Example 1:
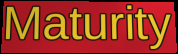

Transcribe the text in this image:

Maturity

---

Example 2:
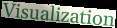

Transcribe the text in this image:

Visualization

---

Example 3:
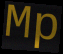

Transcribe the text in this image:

Mp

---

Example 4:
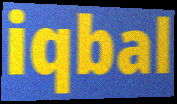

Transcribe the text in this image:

iqbal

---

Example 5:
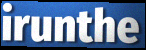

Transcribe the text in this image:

irunthe